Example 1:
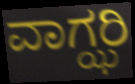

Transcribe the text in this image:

ವಾಗ್ಝರಿ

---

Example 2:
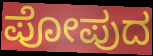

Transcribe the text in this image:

ಪೋಪುದ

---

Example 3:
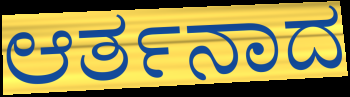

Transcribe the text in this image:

ಆರ್ತನಾದ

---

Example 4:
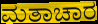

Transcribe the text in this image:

ಮತಾಚಾರ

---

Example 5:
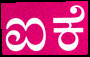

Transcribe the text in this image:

ಐಕೆ